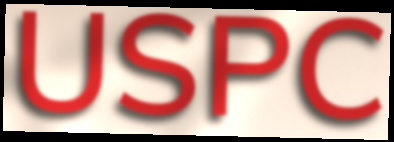
USPC